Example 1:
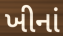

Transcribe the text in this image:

ખીનાં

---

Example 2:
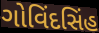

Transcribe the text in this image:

ગોવિંદસિંહ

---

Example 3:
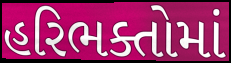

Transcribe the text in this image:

હરિભક્તોમાં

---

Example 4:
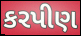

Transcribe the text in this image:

કરપીણ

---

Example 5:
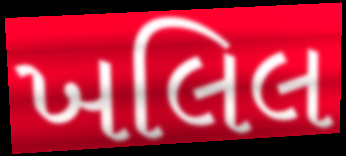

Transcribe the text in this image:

ખલિલ